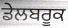
ਡੇਲਬਰੂਕ